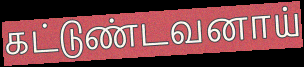
கட்டுண்டவனாய்